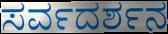
ಸರ್ವದರ್ಶನ